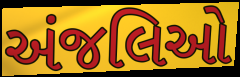
અંજલિઓ